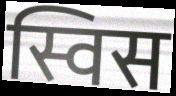
स्विस